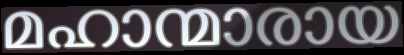
മഹാന്മാരായ